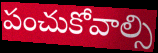
పంచుకోవాల్సి